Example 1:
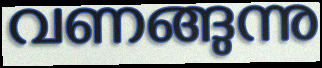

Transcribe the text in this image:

വണങ്ങുന്നു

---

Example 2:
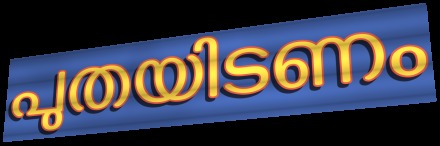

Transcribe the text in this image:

പുതയിടണം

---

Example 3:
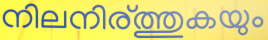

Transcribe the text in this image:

നിലനിര്ത്തുകയും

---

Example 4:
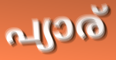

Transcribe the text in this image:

പ്യാര്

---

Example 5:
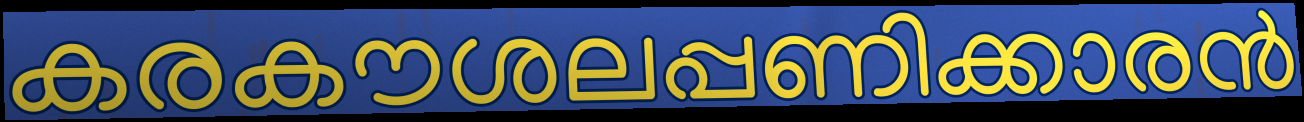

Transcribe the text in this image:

കരകൗശലപ്പണിക്കാരൻ